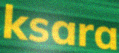
ksara